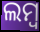
ଲମ୍ବ